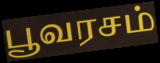
பூவரசம்